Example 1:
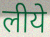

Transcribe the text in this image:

लीये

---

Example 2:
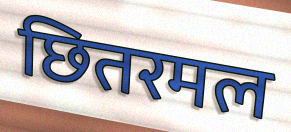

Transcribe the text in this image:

छितरमल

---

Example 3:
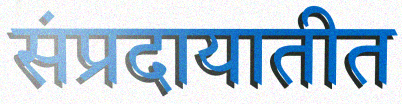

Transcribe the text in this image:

संप्रदायातीत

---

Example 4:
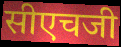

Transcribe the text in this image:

सीएचजी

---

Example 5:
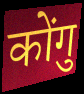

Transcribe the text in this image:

कोंगु